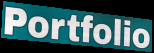
Portfolio